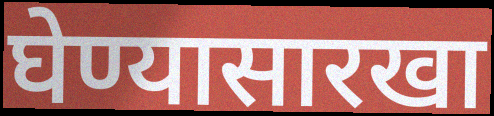
घेण्यासारखा